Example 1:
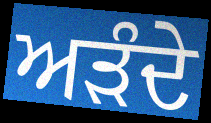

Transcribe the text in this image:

ਅੜੰਦੇ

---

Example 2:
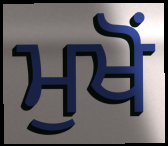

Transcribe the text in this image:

ਮੁਖੋਂ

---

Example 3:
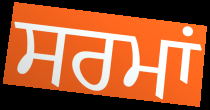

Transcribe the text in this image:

ਸਰਮਾਂ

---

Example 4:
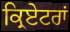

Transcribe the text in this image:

ਕ੍ਰਿਏਟਰਾਂ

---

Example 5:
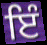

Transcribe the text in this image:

ਇੰ